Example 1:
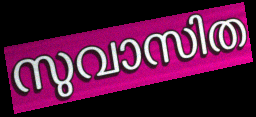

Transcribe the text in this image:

സുവാസിത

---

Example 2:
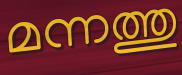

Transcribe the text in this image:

മന്നത്തു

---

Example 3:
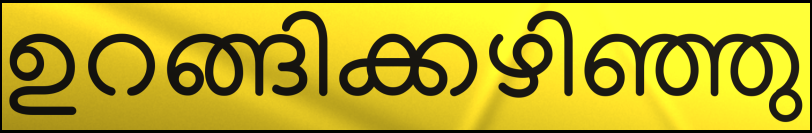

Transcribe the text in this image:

ഉറങ്ങിക്കഴിഞ്ഞു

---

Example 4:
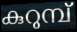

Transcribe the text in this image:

കുറുമ്പ്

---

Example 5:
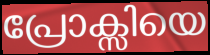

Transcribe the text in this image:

പ്രോക്സിയെ